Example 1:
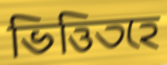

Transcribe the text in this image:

ভিত্তিতহে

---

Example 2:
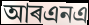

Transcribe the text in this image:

আৰএনএ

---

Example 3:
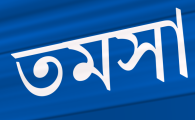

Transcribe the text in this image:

তমসা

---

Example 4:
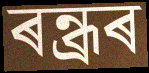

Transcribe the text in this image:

ৰন্ধ্ৰৰ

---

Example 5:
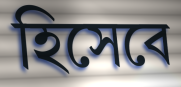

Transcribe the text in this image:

হিসেবে